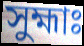
সুহ্মাঃ